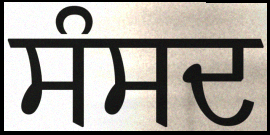
ਸੰਸਦ